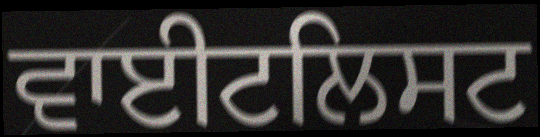
ਵਾਈਟਲਿਸਟ